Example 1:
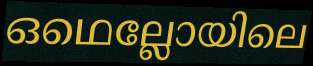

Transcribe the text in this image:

ഒഥെല്ലോയിലെ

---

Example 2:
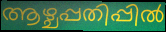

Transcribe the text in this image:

ആഴ്ചപ്പതിപ്പിൽ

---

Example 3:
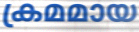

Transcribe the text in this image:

ക്രമമായ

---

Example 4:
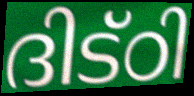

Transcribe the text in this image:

ദിട്ഠി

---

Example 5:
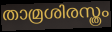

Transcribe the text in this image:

താമ്രശിരസ്ത്രം